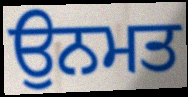
ਉਨਮਤ